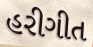
હરીગીત